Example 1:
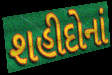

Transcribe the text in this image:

શહીદોનાં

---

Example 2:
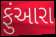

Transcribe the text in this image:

ફુંઆરા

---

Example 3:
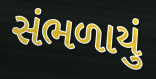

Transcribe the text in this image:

સંભળાયું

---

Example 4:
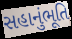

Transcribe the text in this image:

સહાનુંભૂતિ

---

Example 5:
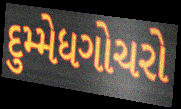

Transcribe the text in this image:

દુમ્મેધગોચરો